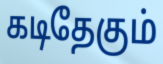
கடிதேகும்